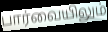
பார்வையிலும்